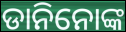
ଡାନିନୋଙ୍କ